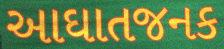
આઘાતજનક